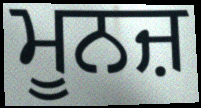
ਮੂਨਜ਼